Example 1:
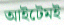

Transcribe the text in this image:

আইটেমই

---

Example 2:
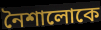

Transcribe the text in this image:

নৈশালোকে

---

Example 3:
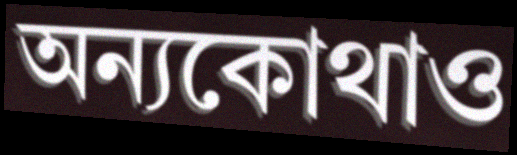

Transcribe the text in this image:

অন্যকোথাও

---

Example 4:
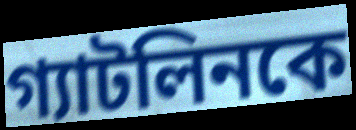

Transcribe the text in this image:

গ্যাটলিনকে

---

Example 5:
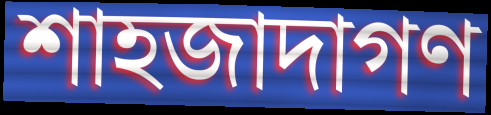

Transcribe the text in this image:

শাহজাদাগণ